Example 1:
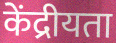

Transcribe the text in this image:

केंद्रीयता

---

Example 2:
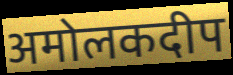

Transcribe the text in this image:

अमोलकदीप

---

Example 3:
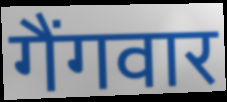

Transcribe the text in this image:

गैंगवार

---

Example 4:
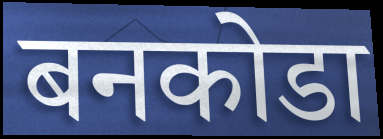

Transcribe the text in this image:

बनकोडा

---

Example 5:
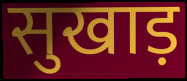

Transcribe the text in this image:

सुखाड़